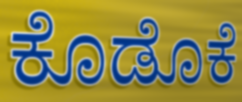
ಕೊಡೊಕೆ